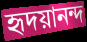
হৃদয়ানন্দ